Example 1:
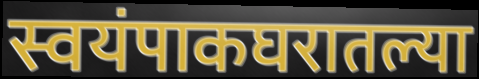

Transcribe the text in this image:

स्वयंपाकघरातल्या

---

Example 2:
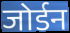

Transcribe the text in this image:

जोर्डन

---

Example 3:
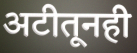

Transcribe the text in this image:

अटीतूनही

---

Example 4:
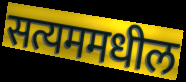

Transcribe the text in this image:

सत्यममधील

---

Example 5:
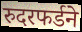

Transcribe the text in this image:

रुदरफर्डने